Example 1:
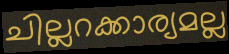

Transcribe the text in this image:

ചില്ലറക്കാര്യമല്ല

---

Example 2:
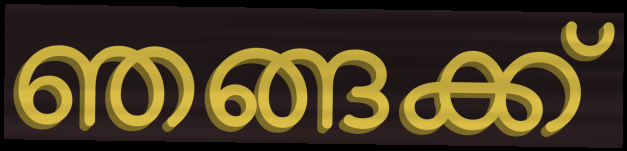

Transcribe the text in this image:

ഞങ്ങക്ക്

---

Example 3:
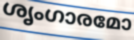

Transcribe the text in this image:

ശൃംഗാരമോ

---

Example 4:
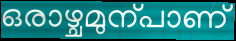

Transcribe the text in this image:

ഒരാഴ്ചമുന്പാണ്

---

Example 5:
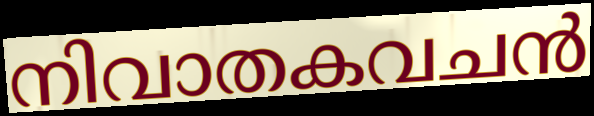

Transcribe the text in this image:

നിവാതകവചൻ